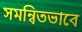
সমন্বিতভাবে